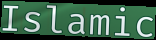
Islamic